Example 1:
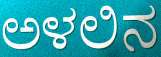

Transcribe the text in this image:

ಅಳಲಿನ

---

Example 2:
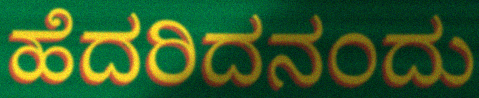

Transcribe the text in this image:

ಹೆದರಿದನಂದು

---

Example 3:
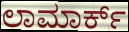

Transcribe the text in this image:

ಲಾಮಾರ್ಕ್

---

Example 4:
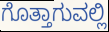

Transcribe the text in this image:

ಗೊತ್ತಾಗುವಲ್ಲಿ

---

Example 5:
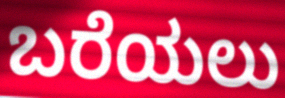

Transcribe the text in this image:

ಬರೆಯಲು